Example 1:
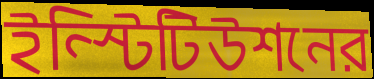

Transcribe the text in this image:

ইন্স্টিটিউশনের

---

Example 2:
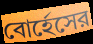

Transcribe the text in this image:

বোর্হেসের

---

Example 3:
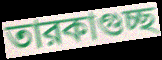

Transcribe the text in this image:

তারকাগুচ্ছ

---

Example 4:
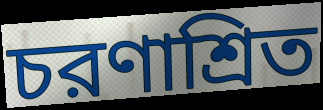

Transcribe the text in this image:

চরণাশ্রিত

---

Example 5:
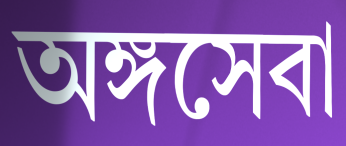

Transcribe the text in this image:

অঙ্গসেবা